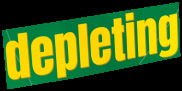
depleting